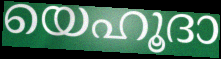
യെഹൂദാ